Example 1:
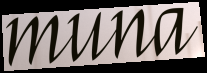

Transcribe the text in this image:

muna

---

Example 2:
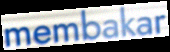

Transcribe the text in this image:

membakar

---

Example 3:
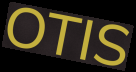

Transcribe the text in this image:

OTIS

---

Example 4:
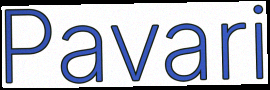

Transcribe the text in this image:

Pavari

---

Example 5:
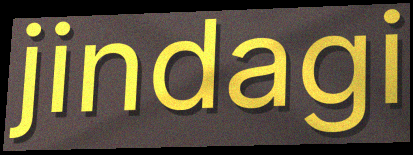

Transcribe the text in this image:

jindagi